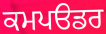
ਕਮਪੳਡਰ